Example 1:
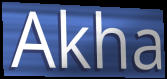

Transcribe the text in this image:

Akha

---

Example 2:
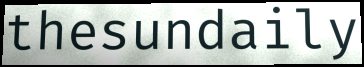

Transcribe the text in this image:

thesundaily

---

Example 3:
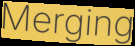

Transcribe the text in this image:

Merging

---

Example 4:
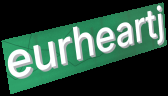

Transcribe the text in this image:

eurheartj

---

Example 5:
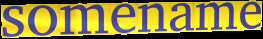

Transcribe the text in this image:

somename